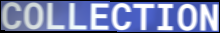
COLLECTION